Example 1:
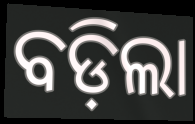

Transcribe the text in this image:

ବଡ଼ିଲା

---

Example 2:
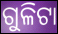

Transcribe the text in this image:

ଗୁଳିଟା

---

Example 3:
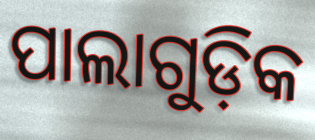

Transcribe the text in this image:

ପାଲାଗୁଡ଼ିକ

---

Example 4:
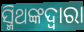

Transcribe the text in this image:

ସ୍ମିଥଙ୍କଦ୍ୱାରା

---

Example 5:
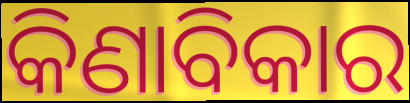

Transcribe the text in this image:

କିଣାବିକାର